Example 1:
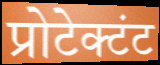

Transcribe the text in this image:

प्रोटेक्टंट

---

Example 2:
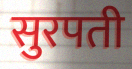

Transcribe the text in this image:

सुरपती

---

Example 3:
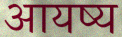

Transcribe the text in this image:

आयष्य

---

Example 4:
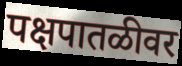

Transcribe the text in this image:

पक्षपातळीवर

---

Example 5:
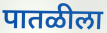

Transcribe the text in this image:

पातळीला